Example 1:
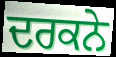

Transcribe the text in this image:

ਦਰਕਨੇ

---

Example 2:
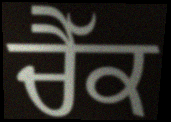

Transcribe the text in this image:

ਚੈੱਕ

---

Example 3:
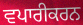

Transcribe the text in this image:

ਵਪਾਰੀਕਰਨ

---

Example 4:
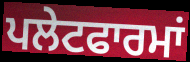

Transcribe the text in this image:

ਪਲੇਟਫਾਰਮਾਂ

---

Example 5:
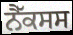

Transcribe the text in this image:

ਨੈੱਕਸਸ